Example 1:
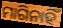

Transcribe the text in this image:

ମାଗିନାହିଁ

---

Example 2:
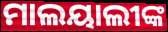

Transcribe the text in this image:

ମାଲୟାଲୀଙ୍କ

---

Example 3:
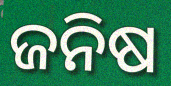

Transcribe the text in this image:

ଜନିଷ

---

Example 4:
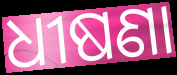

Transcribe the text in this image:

ଧୀଷଣା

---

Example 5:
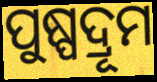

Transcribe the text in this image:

ପୁଷ୍ପଦ୍ରୂମ